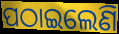
ପଠାଇଲେଣି